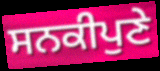
ਸਨਕੀਪੁਣੇ